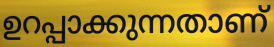
ഉറപ്പാക്കുന്നതാണ്